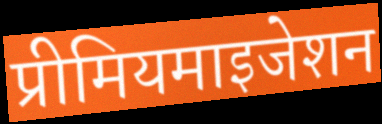
प्रीमियमाइजेशन